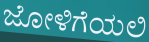
ಜೋಳಿಗೆಯಲಿ